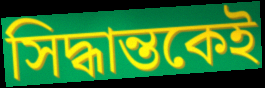
সিদ্ধান্তকেই